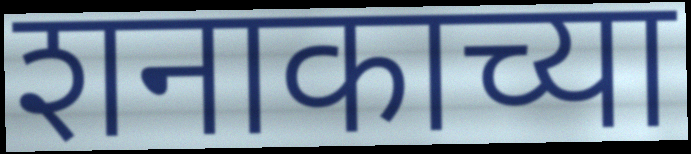
शनाकाच्या